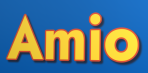
Amio